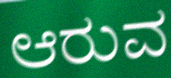
ಆರುವ